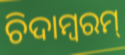
ଚିଦାମ୍ବରମ୍